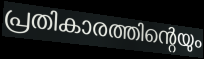
പ്രതികാരത്തിന്റെയും